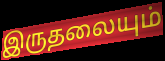
இருதலையும்